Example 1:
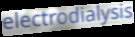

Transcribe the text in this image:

electrodialysis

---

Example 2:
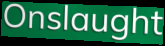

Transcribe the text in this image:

Onslaught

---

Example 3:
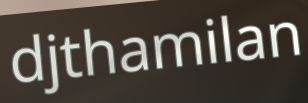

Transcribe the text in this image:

djthamilan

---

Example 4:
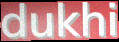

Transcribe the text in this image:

dukhi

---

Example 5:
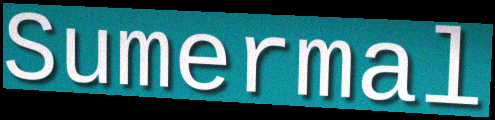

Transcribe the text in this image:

Sumermal